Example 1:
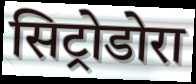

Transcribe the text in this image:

सिट्रोडोरा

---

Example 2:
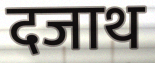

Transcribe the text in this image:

दजाथ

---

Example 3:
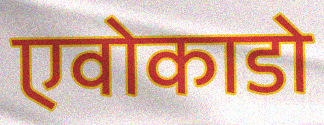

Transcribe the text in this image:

एवोकाडो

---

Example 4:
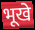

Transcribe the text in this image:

भूखे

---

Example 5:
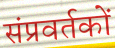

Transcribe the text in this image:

संप्रवर्तकों